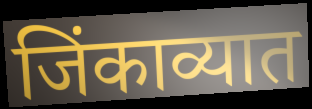
जिंकाव्यात